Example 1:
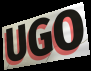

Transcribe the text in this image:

UGO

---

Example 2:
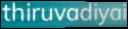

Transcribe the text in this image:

thiruvadiyai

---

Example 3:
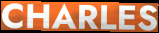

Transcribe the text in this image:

CHARLES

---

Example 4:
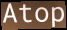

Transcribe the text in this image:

Atop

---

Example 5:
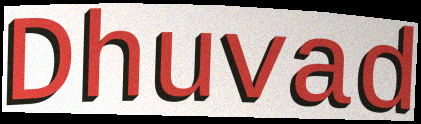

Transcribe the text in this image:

Dhuvad